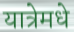
यात्रेमधे